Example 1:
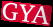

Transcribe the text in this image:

GYA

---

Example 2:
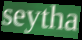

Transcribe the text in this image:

seytha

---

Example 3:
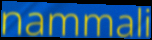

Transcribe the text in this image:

nammali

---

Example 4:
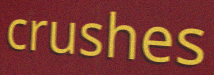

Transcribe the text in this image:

crushes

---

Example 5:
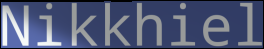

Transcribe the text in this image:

Nikkhiel